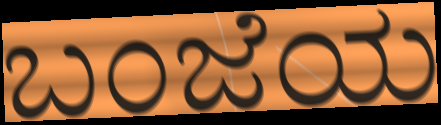
ಬಂಜೆಯ